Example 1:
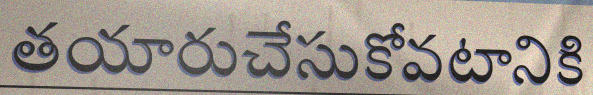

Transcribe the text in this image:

తయారుచేసుకోవటానికి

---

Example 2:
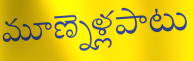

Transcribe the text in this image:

మూణ్నెళ్లపాటు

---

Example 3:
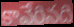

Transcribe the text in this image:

కావేరినది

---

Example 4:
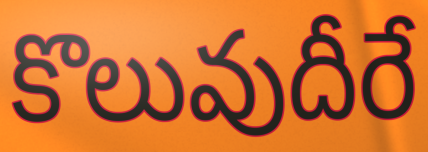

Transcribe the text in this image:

కొలువుదీరే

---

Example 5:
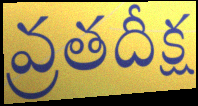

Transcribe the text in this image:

వ్రతదీక్ష